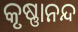
କୃଷ୍ଣାନନ୍ଦ